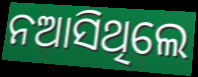
ନଆସିଥିଲେ